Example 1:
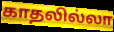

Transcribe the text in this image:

காதலில்லா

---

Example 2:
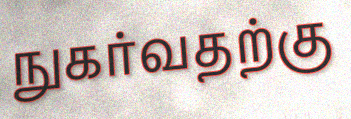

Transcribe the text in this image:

நுகர்வதற்கு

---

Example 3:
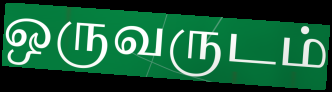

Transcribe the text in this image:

ஒருவருடம்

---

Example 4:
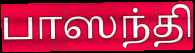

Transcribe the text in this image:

பாஸந்தி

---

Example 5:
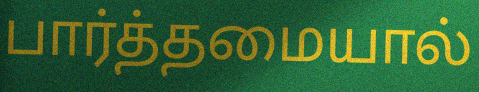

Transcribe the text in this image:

பார்த்தமையால்